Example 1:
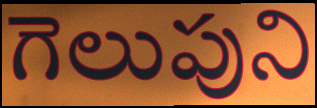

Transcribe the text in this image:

గెలుపుని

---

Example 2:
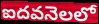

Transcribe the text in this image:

ఐదవనెలలో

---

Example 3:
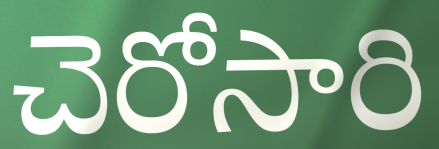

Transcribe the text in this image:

చెరోసారి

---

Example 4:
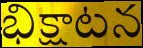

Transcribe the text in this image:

భిక్షాటన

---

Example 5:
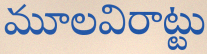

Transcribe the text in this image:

మూలవిరాట్టు